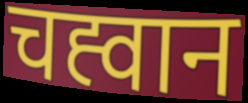
चह्वान